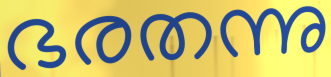
ഭരതന്നു